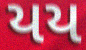
યય